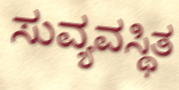
ಸುವ್ಯವಸ್ಥಿತ